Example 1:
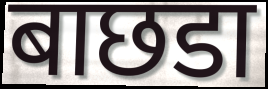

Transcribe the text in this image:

बाछडा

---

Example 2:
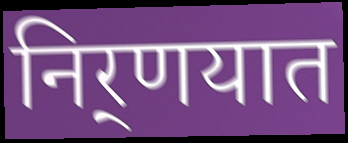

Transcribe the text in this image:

निर्णयात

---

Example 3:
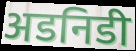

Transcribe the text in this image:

अडनिडी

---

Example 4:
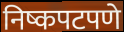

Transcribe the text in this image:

निष्कपटपणे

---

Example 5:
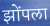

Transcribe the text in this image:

झोंपला